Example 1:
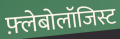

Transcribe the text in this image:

फ़्लेबोलॉजिस्ट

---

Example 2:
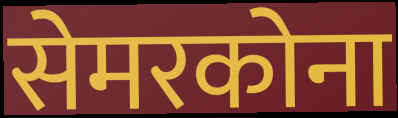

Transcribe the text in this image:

सेमरकोना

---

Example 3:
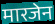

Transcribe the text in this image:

मारजेन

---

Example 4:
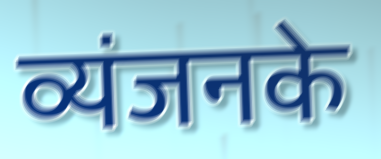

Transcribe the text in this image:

व्यंजनके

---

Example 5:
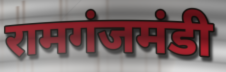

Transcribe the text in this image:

रामगंजमंडी